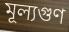
মূল্যগুণ